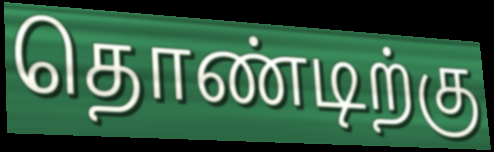
தொண்டிற்கு